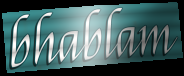
bhablam